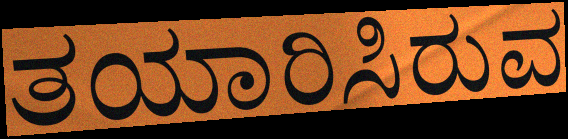
ತಯಾರಿಸಿರುವ